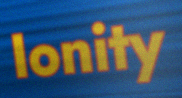
Ionity